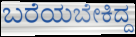
ಬರೆಯಬೇಕಿದ್ದ